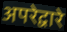
अपरेद्वारे